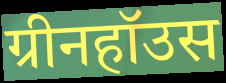
ग्रीनहॉउस